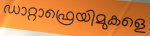
ഡാറ്റാഫ്രെയിമുകളെ